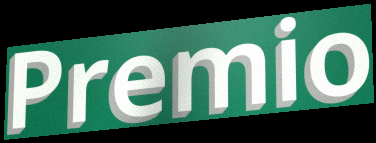
Premio